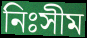
নিঃসীম